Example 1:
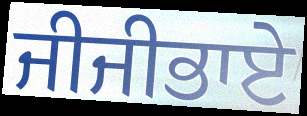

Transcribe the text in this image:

ਜੀਜੀਭਾਏ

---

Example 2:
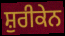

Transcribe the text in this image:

ਸ਼ੁਰੀਕੇਨ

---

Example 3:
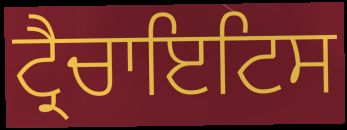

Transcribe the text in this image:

ਟ੍ਰੈਚਾਇਟਿਸ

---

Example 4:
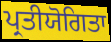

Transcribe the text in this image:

ਪ੍ਰਤੀਯੋਗਿਤਾ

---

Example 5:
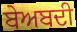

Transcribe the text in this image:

ਬੇਅਬਦੀ